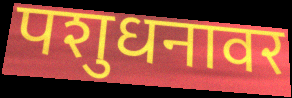
पशुधनावर